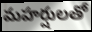
మహర్షులతో